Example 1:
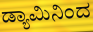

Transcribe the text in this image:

ಡ್ಯಾಮಿನಿಂದ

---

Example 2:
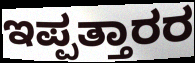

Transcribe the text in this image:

ಇಪ್ಪತ್ತಾರರ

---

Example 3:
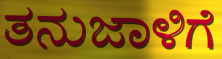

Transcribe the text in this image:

ತನುಜಾಳಿಗೆ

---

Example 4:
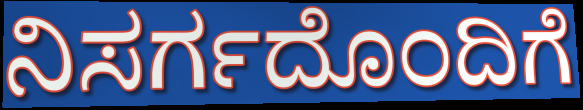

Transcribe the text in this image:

ನಿಸರ್ಗದೊಂದಿಗೆ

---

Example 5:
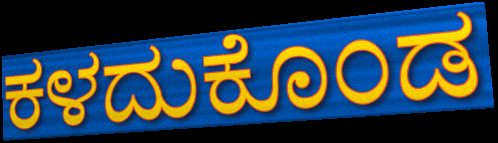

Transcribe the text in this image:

ಕಳದುಕೊಂಡ